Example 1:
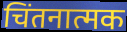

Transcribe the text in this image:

चिंतनात्मक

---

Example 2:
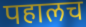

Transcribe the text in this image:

पहालच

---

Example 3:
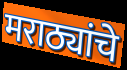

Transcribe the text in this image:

मराठ्यांचे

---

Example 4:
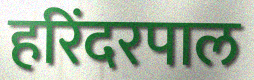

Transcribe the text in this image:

हरिंदरपाल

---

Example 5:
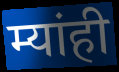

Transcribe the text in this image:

म्यांही